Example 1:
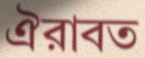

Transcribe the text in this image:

ঐরাবত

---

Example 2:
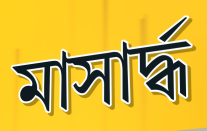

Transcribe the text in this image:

মাসার্দ্ধ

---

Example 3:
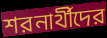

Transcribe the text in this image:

শরনার্থীদের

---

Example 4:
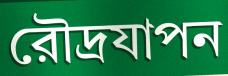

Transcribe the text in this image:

রৌদ্রযাপন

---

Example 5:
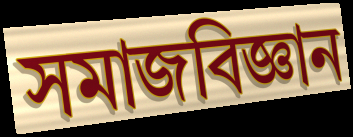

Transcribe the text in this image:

সমাজবিজ্ঞান